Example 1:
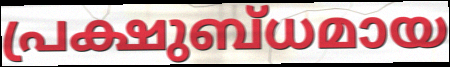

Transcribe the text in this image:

പ്രക്ഷുബ്ധമായ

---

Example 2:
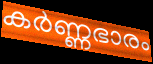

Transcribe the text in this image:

കർണ്ണഭാരം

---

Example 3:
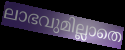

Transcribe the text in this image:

ലാഭവുമില്ലാതെ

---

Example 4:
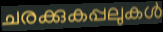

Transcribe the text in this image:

ചരക്കുകപ്പലുകൾ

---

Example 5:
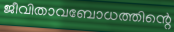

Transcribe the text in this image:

ജീവിതാവബോധത്തിന്റെ